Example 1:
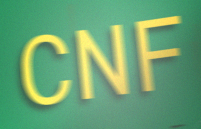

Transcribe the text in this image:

CNF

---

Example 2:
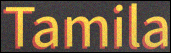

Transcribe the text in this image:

Tamila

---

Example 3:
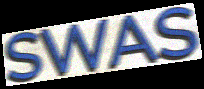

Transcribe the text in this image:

SWAS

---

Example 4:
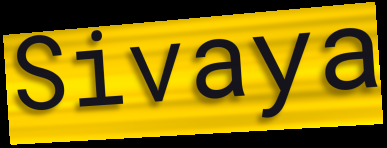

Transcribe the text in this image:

Sivaya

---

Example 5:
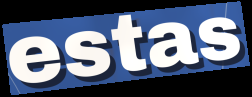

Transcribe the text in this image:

estas